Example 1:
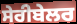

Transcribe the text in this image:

ਸੇਰੀਬੇਲਰ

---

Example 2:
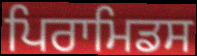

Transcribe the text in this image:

ਪਿਰਾਮਿਡਸ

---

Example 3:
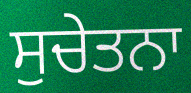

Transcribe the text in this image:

ਸੁਚੇਤਨਾ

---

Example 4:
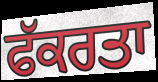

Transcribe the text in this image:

ਫੱਕਰਤਾ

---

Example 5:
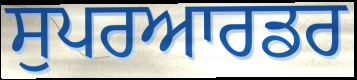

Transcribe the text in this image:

ਸੁਪਰਆਰਡਰ